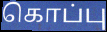
கொப்பு